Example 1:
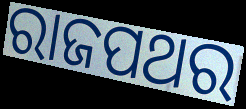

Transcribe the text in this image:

ରାଜପଥର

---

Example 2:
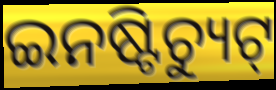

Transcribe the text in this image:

ଇନଷ୍ଟିଚ୍ୟୁଟ୍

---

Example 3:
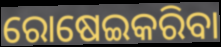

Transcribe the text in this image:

ରୋଷେଇକରିବା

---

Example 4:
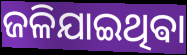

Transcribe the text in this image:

ଜଳିଯାଇଥିଵା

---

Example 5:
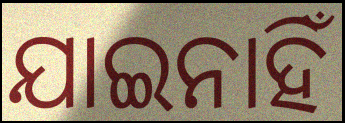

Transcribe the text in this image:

ଯାଇନାହିଁ